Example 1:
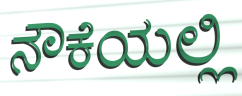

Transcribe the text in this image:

ನೌಕೆಯಲ್ಲಿ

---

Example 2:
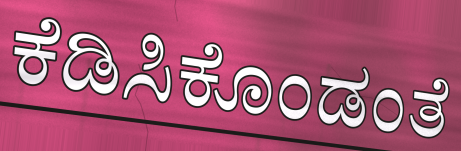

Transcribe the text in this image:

ಕೆಡಿಸಿಕೊಂಡಂತೆ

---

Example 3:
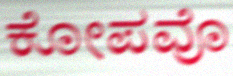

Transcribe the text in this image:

ಕೋಪವೊ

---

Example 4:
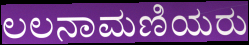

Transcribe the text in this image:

ಲಲನಾಮಣಿಯರು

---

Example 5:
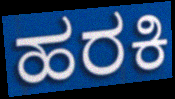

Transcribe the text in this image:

ಹರಕಿ